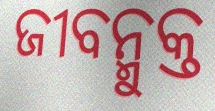
ଜୀବନ୍ମୁକ୍ତ